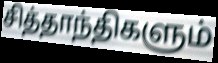
சித்தாந்திகளும்